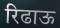
रिढाऊ